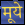
मूये